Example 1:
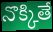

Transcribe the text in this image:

నొక్కితే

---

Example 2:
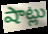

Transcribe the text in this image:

షాట్లు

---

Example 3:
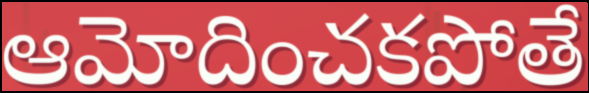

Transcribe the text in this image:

ఆమోదించకపోతే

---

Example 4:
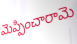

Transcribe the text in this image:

మెప్పించారామె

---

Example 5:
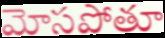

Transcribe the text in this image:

మోసపోతూ